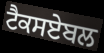
ਟੈਕਸਏਬਲ